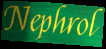
Nephrol